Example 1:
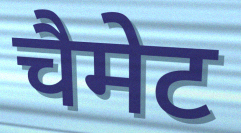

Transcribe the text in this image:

चैमेट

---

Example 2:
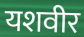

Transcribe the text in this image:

यशवीर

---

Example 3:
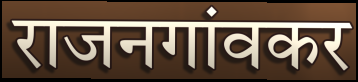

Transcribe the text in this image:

राजनगांवकर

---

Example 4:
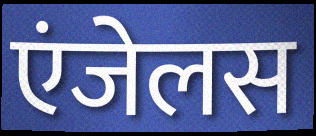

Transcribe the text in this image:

एंजेलस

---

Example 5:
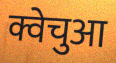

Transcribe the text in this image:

क्वेचुआ